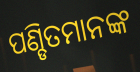
ପଣ୍ଡିତମାନଙ୍କ